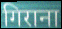
गिराना